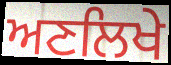
ਅਣਲਿਖੇ